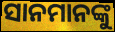
ସାନମାନଙ୍କୁ